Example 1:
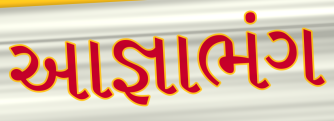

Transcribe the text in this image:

આજ્ઞાભંગ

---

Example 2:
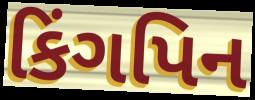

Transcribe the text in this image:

કિંગપિન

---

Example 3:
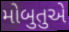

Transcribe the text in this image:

મોબુતુએ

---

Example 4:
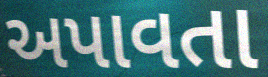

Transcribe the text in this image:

અપાવતા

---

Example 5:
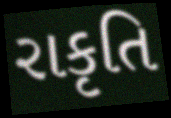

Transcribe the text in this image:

રાકૃતિ